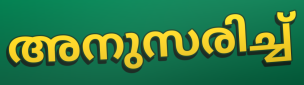
അനുസരിച്ച്